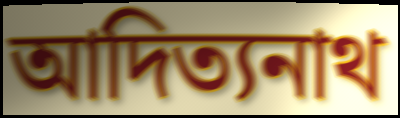
আদিত্যনাথ